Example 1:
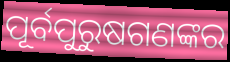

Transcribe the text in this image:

ପୂର୍ବପୁରୁଷଗଣଙ୍କର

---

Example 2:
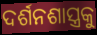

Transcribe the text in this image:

ଦର୍ଶନଶାସ୍ତ୍ରକୁ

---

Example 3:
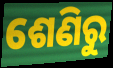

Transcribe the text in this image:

ଶେଣିରୁ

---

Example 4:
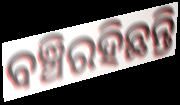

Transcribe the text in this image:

ବଞ୍ଚିରହିଛନ୍ତି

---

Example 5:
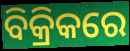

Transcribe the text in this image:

ବିକ୍ରିକରେ